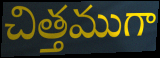
చిత్తముగా